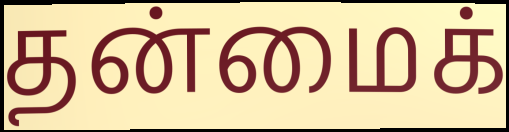
தன்மைக்